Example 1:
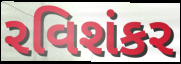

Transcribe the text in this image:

રવિશંકર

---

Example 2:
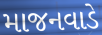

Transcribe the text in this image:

માજનવાડે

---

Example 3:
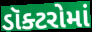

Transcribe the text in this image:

ડૉક્ટરોમાં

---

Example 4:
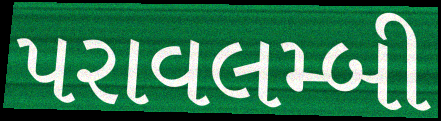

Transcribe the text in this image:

પરાવલમ્બી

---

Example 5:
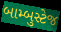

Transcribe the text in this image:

બામ્બુસ્ટેજ